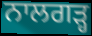
ਨਾਲਗੜ੍ਹ